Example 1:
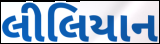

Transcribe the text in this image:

લીલિયાન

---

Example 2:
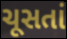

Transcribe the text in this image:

ચૂસતાં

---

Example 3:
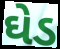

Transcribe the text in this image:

ઘેડ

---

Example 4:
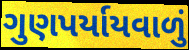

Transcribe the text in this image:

ગુણપર્યાયવાળું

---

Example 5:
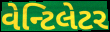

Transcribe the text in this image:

વેન્ટિલેટર